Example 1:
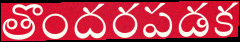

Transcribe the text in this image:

తొందరపడక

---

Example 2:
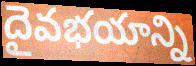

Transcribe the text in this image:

దైవభయాన్ని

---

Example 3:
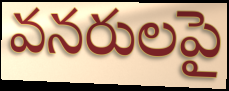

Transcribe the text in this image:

వనరులపై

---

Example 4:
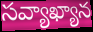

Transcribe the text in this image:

సవ్యాఖ్యాన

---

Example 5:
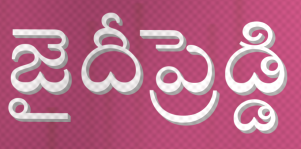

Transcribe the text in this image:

జైదీప్రెడ్డి